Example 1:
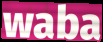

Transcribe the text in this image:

waba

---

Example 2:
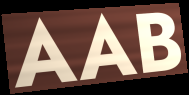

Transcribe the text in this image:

AAB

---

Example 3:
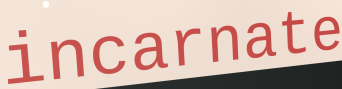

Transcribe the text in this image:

incarnate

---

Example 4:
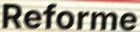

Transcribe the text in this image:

Reforme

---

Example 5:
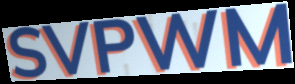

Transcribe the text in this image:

SVPWM